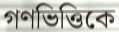
গণভিত্তিকে